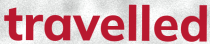
travelled